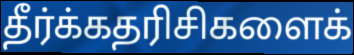
தீர்க்கதரிசிகளைக்